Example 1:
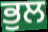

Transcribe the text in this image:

ਭੁਲ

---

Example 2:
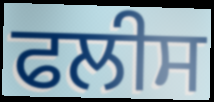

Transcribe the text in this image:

ਫਲੀਸ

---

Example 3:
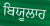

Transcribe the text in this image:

ਬਿਯੂਲਾਹ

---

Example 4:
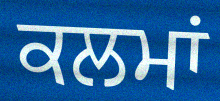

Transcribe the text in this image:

ਕਲਮਾਂ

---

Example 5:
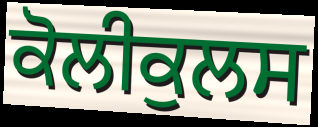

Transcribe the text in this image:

ਕੋਲੀਕੁਲਸ